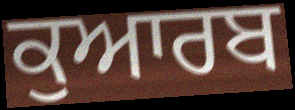
ਕੁਆਰਬ